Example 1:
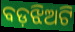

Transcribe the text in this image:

ବଡ଼ଝିଅଟି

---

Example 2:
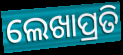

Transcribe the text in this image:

ଲେଖାପ୍ରତି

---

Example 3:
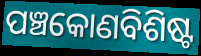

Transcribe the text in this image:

ପଞ୍ଚକୋଣବିଶିଷ୍ଟ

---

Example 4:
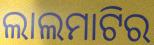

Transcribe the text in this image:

ଲାଲମାଟିର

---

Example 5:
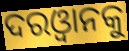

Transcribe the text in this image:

ଦରଓ୍ୱାନକୁ